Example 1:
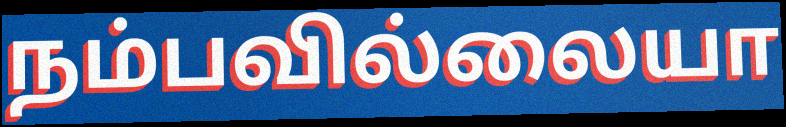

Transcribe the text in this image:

நம்பவில்லையா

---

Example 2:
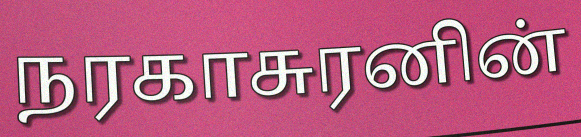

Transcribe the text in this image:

நரகாசுரனின்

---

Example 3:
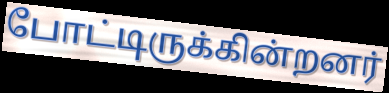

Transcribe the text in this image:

போட்டிருக்கின்றனர்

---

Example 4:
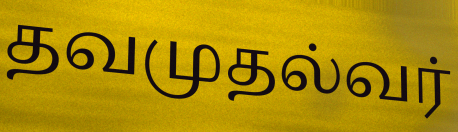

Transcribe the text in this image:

தவமுதல்வர்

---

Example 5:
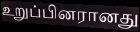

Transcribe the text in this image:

உறுப்பினரானது